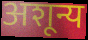
अशून्य